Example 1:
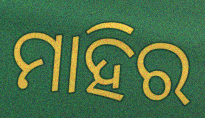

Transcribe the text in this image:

ମାହିର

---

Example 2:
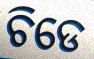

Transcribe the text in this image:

ଚିଡେ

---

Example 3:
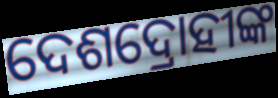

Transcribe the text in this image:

ଦେଶଦ୍ରୋହୀଙ୍କ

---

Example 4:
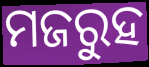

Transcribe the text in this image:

ମଜରୁହ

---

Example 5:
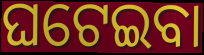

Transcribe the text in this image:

ଘଟେଇବା